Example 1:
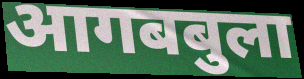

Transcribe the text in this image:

आगबबुला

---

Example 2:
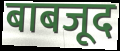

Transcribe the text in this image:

बाबजूद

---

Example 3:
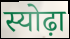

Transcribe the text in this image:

स्योढ़ा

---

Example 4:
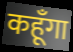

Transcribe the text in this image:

कहूँगा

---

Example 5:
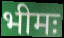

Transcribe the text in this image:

भीमः